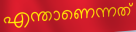
എന്താണെന്നത്